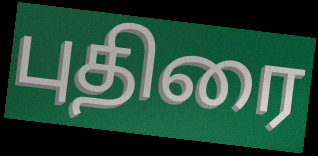
புதிரை